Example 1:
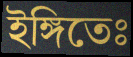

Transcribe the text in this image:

ইঙ্গিতেঃ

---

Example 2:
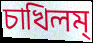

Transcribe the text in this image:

চাখিলম্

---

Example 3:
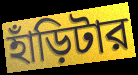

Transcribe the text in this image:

হাঁড়িটার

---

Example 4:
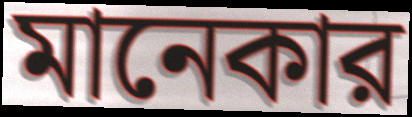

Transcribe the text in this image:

মানেকার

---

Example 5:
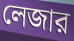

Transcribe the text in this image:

লেজার